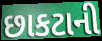
છાકટાની